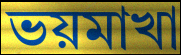
ভয়মাখা